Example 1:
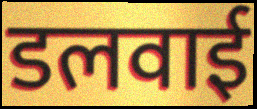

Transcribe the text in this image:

डलवाई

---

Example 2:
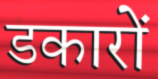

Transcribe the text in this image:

डकारों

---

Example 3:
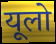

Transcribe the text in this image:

यूलो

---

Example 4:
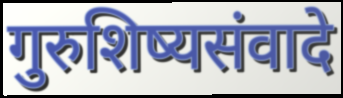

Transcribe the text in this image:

गुरुशिष्यसंवादे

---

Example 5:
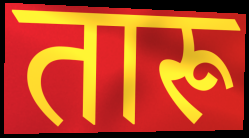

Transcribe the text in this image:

तारू